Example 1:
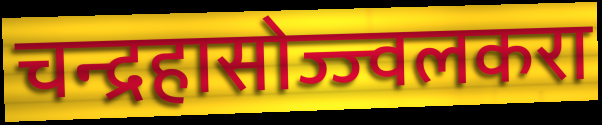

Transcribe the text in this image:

चन्द्रहासोज्ज्वलकरा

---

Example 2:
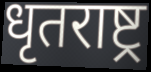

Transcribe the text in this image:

धृतराष्ट्र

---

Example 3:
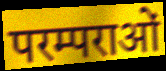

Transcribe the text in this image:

परम्पराओं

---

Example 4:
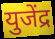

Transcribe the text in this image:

युजेंद्र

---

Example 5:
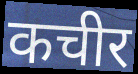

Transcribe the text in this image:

कचीर